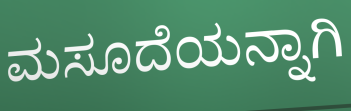
ಮಸೂದೆಯನ್ನಾಗಿ